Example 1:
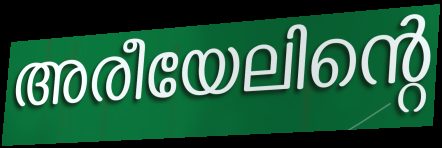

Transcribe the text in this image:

അരീയേലിന്റെ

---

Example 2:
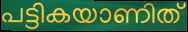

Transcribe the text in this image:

പട്ടികയാണിത്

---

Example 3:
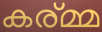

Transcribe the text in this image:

കര്മ്മ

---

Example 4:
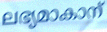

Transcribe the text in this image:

ലഭ്യമാകാന്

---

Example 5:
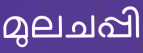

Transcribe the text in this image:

മുലചപ്പി